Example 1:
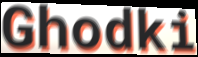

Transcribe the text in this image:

Ghodki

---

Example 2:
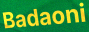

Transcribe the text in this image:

Badaoni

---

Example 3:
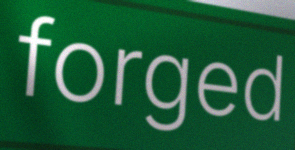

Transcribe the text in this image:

forged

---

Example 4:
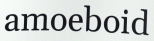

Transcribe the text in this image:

amoeboid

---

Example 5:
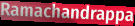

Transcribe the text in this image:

Ramachandrappa